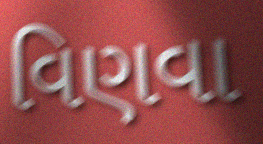
વિણવા